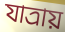
যাত্রায়